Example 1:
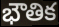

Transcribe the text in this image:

భౌతిక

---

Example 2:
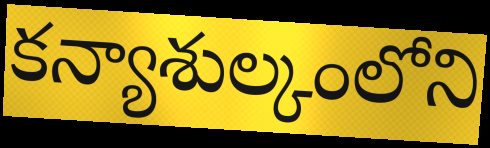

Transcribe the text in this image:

కన్యాశుల్కంలోని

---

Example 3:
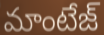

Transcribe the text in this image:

మాంటేజ్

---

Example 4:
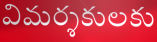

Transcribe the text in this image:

విమర్శకులకు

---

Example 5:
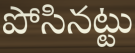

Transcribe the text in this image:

పోసినట్టు